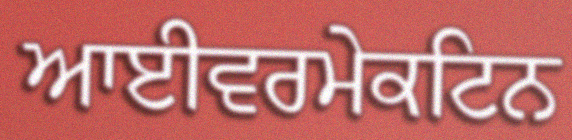
ਆਈਵਰਮੇਕਟਿਨ